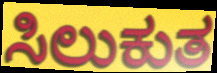
ಸಿಲುಕುತ